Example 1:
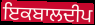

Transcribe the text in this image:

ਇਕਬਾਲਦੀਪ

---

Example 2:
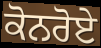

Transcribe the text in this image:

ਕੋਨਰੋਏ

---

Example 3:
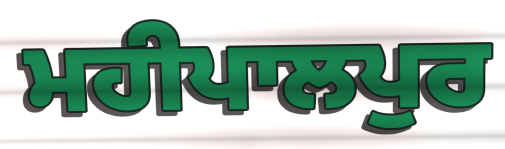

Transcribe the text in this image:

ਮਹੀਪਾਲਪੁਰ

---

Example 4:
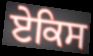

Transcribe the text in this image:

ਏਕਿਸ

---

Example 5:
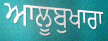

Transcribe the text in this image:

ਆਲੂਬੁਖਾਰਾ